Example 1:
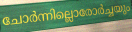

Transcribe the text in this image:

ചോർന്നില്ലൊരോർച്ചയും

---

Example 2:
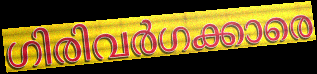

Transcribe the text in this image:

ഗിരിവർഗക്കാരെ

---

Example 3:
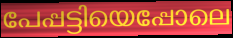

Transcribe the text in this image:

പേപ്പട്ടിയെപ്പോലെ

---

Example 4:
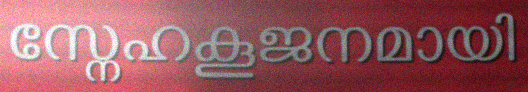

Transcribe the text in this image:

സ്നേഹകൂജനമായി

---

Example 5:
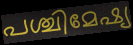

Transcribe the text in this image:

പശ്ചിമേഷ്യ